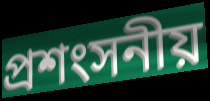
প্ৰশংসনীয়